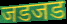
जडजड